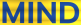
MIND